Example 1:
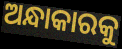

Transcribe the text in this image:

ଅନ୍ଧାକାରକୁ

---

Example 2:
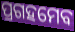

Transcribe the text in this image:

ପ୍ରଗହମେବ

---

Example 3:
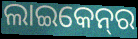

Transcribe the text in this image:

ଲାଇକେନ୍‌ର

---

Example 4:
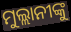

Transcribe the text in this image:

ମୁଲ୍ଲାନୀଙ୍କୁ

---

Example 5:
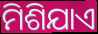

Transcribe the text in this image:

ମିଶିଯାଏ